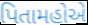
પિતામહોએ